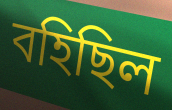
বহিছিল